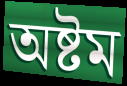
অষ্টম